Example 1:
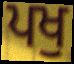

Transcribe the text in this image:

ਪਖੁ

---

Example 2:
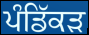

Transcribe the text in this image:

ਪੰਡਿੱਕੜ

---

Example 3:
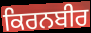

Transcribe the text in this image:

ਕਿਰਨਬੀਰ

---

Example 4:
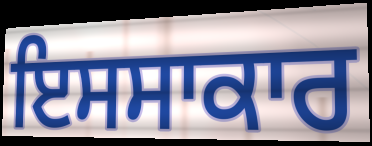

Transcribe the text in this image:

ਇਸਸਾਕਾਰ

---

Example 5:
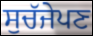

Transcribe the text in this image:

ਸੁਚੱਜੇਪਣ